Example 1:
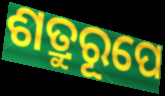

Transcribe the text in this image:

ଶତ୍ରୁରୂପେ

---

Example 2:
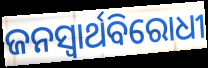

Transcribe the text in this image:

ଜନସ୍ଵାର୍ଥବିରୋଧୀ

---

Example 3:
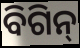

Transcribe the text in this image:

ବିଗିନ୍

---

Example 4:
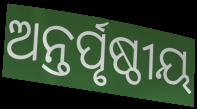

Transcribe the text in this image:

ଅନ୍ତର୍ପୃଷ୍ଠୀୟ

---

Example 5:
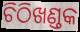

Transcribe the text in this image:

ଚିଠିଖଣ୍ଡକ